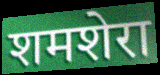
शमशेरा